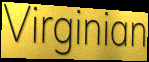
Virginian